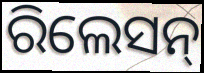
ରିଲେସନ୍